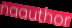
naauthor